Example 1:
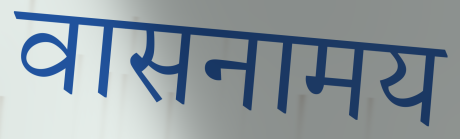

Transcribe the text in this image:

वासनामय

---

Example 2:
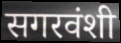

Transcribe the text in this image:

सगरवंशी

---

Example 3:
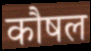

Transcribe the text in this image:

कौषल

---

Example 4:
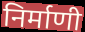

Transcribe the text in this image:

निर्माणी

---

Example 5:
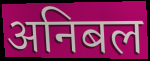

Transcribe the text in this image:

अनिबल